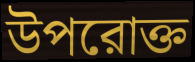
উপরোক্ত